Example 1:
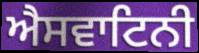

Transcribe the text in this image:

ਐਸਵਾਟਿਨੀ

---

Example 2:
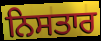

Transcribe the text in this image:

ਨਿਸਤਾਰ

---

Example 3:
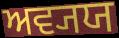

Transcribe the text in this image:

ਅਵ੍ਯਯ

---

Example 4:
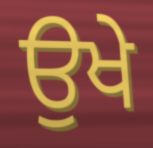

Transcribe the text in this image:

ਉਖੇ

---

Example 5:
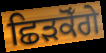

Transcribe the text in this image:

ਛਿੜਕੋਁਗੇ